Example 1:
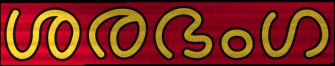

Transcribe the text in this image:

ശരഭംഗ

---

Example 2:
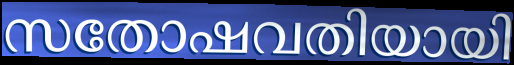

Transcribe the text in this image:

സതോഷവതിയായി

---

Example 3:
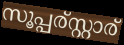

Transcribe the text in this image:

സൂപ്പര്സ്റ്റാര്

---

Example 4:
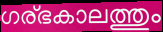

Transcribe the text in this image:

ഗര്ഭകാലത്തും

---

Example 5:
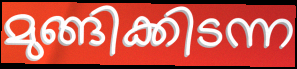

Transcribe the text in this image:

മുങ്ങിക്കിടന്ന